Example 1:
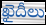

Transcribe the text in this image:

ఖైదీలు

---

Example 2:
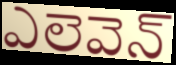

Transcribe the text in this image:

ఎలెవెన్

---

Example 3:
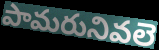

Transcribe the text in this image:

పామరునివలె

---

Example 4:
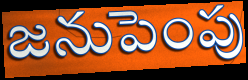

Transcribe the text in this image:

జనుపెంపు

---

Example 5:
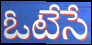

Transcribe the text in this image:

ఓటేసే